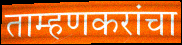
ताम्हणकरांचा